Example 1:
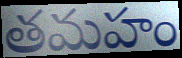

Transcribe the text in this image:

తమహం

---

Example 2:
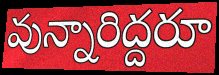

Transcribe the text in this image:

వున్నారిద్దరూ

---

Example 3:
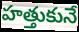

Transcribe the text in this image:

హత్తుకునే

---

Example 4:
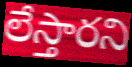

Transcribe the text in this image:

లేస్తారని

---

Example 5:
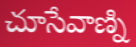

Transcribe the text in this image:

చూసేవాణ్ని